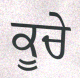
ਕੂਚੇ